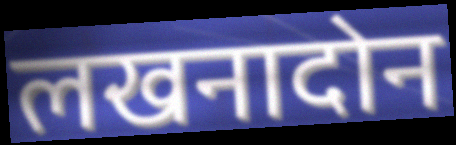
लखनादोन